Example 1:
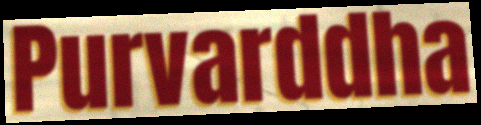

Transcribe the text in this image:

Purvarddha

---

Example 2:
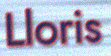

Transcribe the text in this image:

Lloris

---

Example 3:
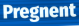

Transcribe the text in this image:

Pregnent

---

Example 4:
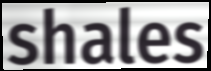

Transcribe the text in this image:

shales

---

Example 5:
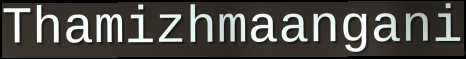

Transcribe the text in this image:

Thamizhmaangani